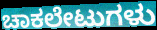
ಚಾಕಲೇಟುಗಳು